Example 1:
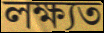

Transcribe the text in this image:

লক্ষ্য়ত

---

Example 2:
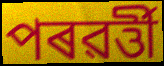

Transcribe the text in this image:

পৰৱৰ্ত্তী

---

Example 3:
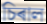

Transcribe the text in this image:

চিৰাল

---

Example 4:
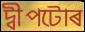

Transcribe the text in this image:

দ্বীপটোৰ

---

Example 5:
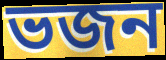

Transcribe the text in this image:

ভজন